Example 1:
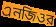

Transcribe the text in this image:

এনজিওর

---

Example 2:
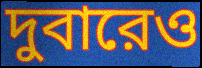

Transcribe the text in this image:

দুবারেও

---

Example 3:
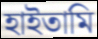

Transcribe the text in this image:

হাইতামি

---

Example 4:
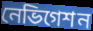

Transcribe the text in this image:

নেভিগেশন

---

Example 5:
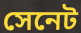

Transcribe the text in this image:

সেনেট